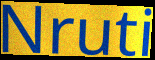
Nruti